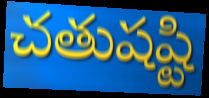
చతుషష్టి